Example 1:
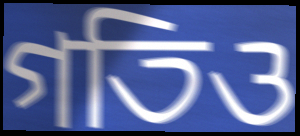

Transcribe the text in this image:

গতিও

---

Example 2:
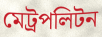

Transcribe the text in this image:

মেট্রপলিটন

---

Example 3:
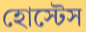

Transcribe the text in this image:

হোস্টেস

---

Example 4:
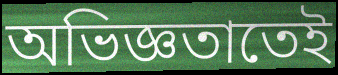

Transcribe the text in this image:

অভিজ্ঞতাতেই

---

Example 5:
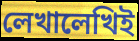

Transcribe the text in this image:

লেখালেখিই